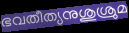
ഭവതീത്യനുശുശ്രുമ